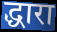
द्धारा